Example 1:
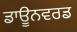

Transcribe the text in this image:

ਡਾਊਨਵਰਡ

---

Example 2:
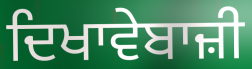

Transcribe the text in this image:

ਦਿਖਾਵੇਬਾਜ਼ੀ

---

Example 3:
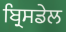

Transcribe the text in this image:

ਬ੍ਰਿਸਡੇਲ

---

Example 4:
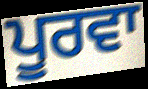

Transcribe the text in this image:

ਪੂਰਵਾ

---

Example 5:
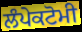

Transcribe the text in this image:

ਲੰਪੇਕਟੋਮੀ